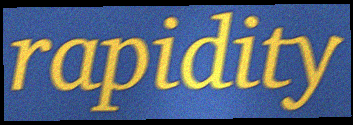
rapidity